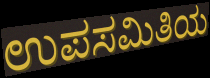
ಉಪಸಮಿತಿಯ